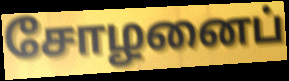
சோழனைப்